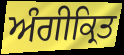
ਅੰਗੀਕ੍ਰਿਤ